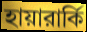
হায়ারার্কি